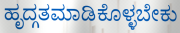
ಹೃದ್ಗತಮಾಡಿಕೊಳ್ಳಬೇಕು